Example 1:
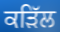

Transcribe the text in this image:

ਕੜਿੱਲ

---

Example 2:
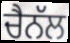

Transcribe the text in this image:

ਚੈਨੱਲ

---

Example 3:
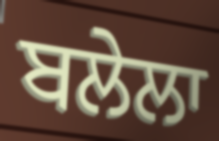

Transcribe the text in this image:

ਬਲੇਲਾ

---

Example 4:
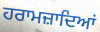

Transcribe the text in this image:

ਹਰਾਮਜ਼ਾਦਿਆਂ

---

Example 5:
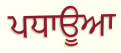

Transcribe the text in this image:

ਪਧਾਊਆ